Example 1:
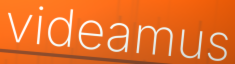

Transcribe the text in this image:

videamus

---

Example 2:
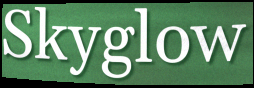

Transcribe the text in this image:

Skyglow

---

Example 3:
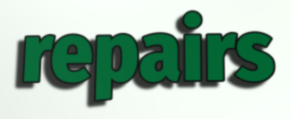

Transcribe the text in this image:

repairs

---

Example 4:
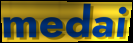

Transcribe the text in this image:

medai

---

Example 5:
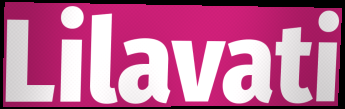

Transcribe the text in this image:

Lilavati